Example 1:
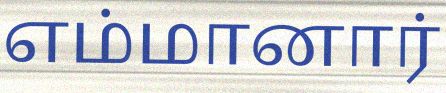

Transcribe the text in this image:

எம்மானார்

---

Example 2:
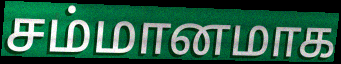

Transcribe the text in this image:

சம்மானமாக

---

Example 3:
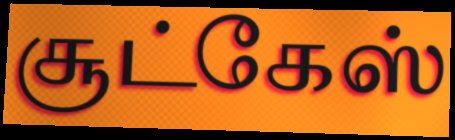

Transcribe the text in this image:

சூட்கேஸ்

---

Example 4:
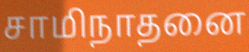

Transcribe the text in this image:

சாமிநாதனை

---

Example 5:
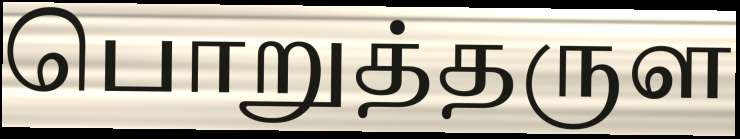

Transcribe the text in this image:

பொறுத்தருள